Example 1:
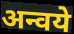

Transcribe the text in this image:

अन्वये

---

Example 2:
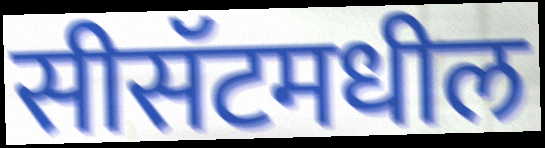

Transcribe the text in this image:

सीसॅटमधील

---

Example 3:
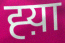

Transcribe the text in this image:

ह्य़ा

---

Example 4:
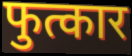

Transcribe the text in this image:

फुत्कार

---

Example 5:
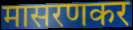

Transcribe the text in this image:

मासरणकर